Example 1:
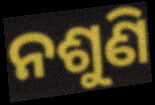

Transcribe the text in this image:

ନଶୁଣି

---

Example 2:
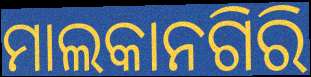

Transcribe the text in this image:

ମାଲକାନଗିରି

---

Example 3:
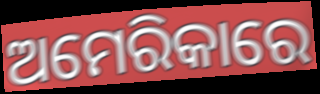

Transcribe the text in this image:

ଅମେରିକାରେ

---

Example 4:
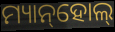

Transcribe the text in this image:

ମ୍ୟାନ୍‌ହୋଲ୍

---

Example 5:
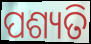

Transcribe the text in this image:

ପଶ୍ୟତି